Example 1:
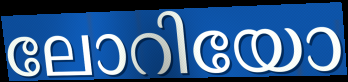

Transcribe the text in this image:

ലോറിയോ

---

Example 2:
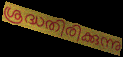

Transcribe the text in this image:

ശ്രദ്ധതിരിക്കുന്നു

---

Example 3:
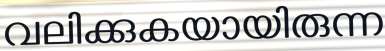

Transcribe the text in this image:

വലിക്കുകയായിരുന്ന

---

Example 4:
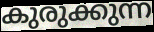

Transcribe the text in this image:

കുരുക്കുന്ന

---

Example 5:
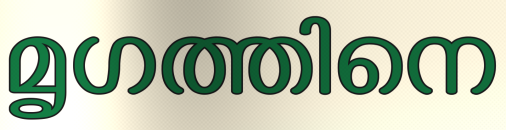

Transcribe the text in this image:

മൃഗത്തിനെ